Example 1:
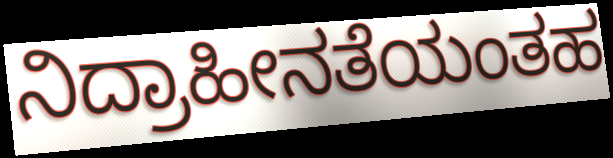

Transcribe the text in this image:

ನಿದ್ರಾಹೀನತೆಯಂತಹ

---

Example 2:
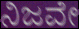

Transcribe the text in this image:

ನಿಜವೇ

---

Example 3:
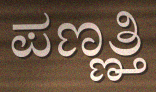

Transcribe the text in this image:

ಪಣ್ಣತ್ತಿ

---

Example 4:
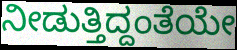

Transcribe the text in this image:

ನೀಡುತ್ತಿದ್ದಂತೆಯೇ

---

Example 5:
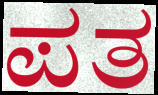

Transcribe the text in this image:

ಪತ